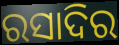
ରସାଦିର